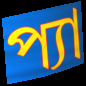
প্যা